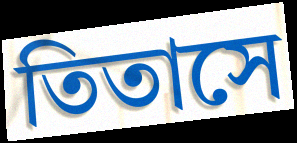
তিতাসে